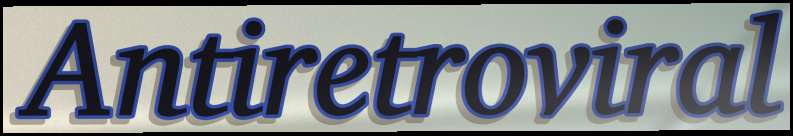
Antiretroviral